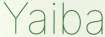
Yaiba